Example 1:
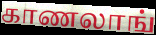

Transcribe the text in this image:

காணலாங்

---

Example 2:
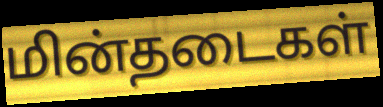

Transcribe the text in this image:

மின்தடைகள்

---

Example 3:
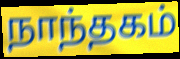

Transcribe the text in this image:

நாந்தகம்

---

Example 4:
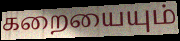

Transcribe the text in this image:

கறையையும்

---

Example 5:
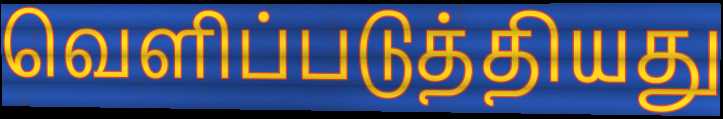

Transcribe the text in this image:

வெளிப்படுத்தியது